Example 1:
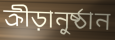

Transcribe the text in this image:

ক্ৰীড়ানুষ্ঠান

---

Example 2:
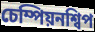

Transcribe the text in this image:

চেম্পিয়নশ্বিপ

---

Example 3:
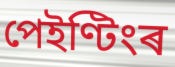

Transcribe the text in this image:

পেইণ্টিংৰ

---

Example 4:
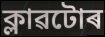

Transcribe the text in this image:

ক্লাৱটোৰ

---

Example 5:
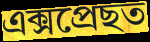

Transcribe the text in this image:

এক্সপ্ৰেছত